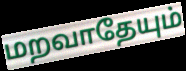
மறவாதேயும்